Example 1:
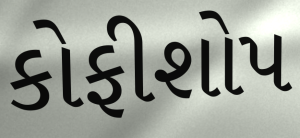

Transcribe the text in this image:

કોફીશોપ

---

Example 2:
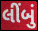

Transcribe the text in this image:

લીંબું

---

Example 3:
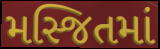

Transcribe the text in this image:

મસ્જિતમાં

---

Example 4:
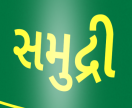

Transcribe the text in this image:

સમુદ્રી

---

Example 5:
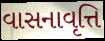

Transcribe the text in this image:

વાસનાવૃત્તિ